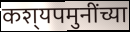
कश्यपमुनींच्या